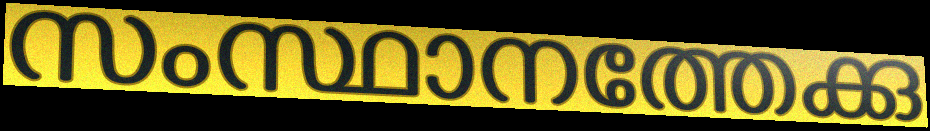
സംസ്ഥാനത്തേക്കു